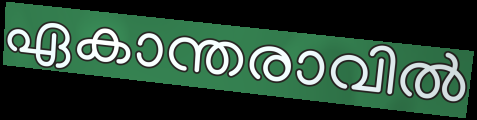
ഏകാന്തരാവിൽ